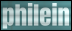
philein